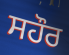
ਸਹੌਰ